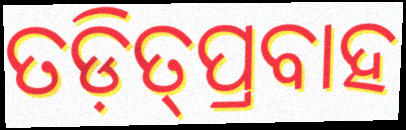
ତଡ଼ିତ୍‌ପ୍ରବାହ